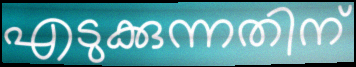
എടുക്കുന്നതിന്